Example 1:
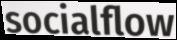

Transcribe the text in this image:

socialflow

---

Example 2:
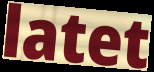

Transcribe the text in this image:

latet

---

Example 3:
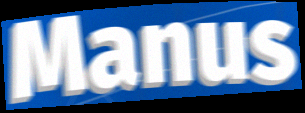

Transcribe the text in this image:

Manus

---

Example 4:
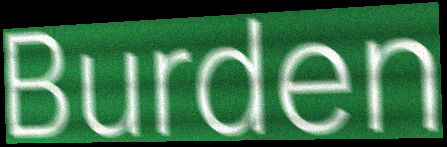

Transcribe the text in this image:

Burden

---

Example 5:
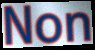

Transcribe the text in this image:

Non